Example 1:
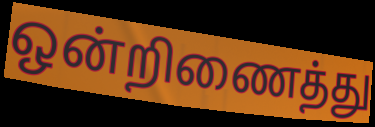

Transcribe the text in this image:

ஒன்றிணைத்து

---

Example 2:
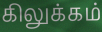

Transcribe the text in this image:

கிலுக்கம்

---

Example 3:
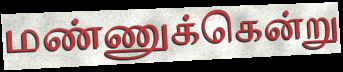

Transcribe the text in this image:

மண்ணுக்கென்று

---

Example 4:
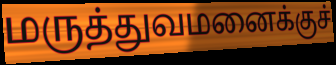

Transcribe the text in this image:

மருத்துவமனைக்குச்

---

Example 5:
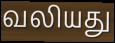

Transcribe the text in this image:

வலியது